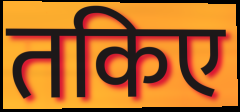
तकिए